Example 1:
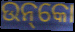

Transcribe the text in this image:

ଉନ୍‌କୋ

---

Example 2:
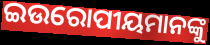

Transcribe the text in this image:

ଇଉରୋପୀୟମାନଙ୍କୁ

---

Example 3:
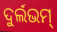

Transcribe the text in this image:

ଦୁର୍ଲଭମ୍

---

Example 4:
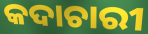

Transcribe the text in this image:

କଦାଚାରୀ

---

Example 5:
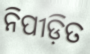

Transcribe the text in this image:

ନିପୀଡ଼ିତ